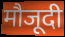
मौजूदी